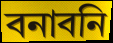
বনাবনি